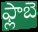
ఫ్లాబె